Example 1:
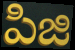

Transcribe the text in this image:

పిజి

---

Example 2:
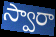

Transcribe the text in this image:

స్వారా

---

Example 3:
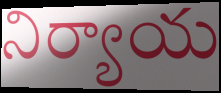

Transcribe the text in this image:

నిర్యాయ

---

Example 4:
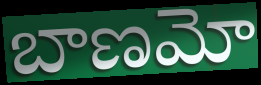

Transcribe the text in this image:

బాణమో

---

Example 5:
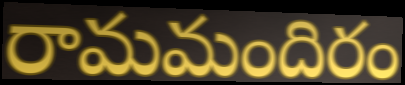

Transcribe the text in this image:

రామమందిరం